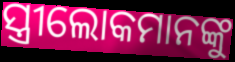
ସ୍ତ୍ରୀଲୋକମାନଙ୍କୁ